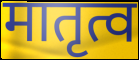
मातृत्व